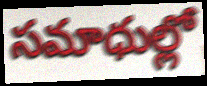
సమాధుల్లో